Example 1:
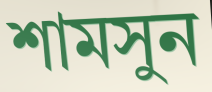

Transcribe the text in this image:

শামসুন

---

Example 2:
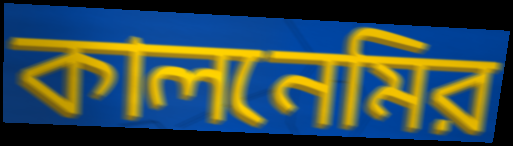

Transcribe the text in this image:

কালনেমির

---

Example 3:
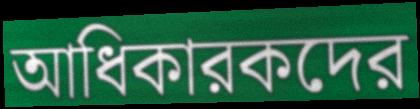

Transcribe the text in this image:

আধিকারকদের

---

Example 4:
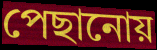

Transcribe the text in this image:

পেছানোয়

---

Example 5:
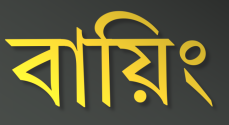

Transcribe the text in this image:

বায়িং